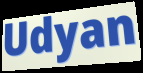
Udyan